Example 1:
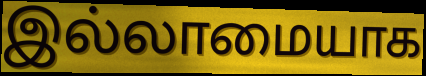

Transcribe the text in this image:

இல்லாமையாக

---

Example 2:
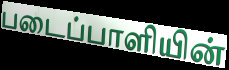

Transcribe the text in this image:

படைப்பாளியின்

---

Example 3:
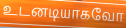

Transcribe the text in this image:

உடனடியாகவோ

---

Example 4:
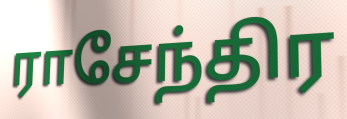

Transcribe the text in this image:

ராசேந்திர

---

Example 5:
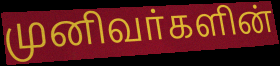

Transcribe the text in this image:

முனிவர்களின்